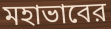
মহাভাবের